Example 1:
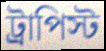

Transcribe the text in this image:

ট্রাপিস্ট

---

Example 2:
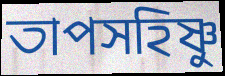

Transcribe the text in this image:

তাপসহিষ্ণু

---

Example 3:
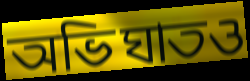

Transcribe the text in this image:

অভিঘাতও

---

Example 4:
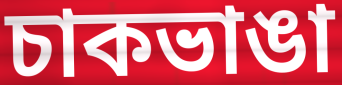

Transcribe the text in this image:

চাকভাঙা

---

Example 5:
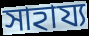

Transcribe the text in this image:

সাহায্য